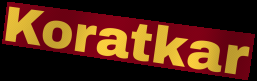
Koratkar